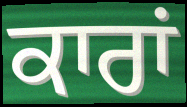
ਕਾਰਾਂ